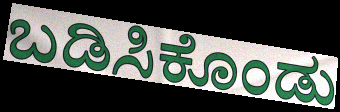
ಬಡಿಸಿಕೊಂಡು